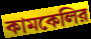
কামকেলির